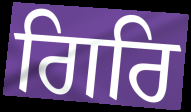
ਗਿਰਿ